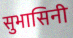
सुभासिनी